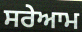
ਸਰੇਆਮ